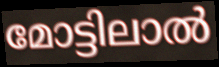
മോട്ടിലാൽ